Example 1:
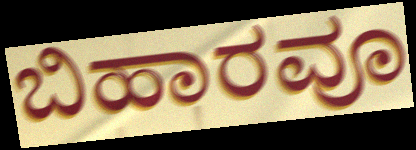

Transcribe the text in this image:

ಬಿಹಾರವೂ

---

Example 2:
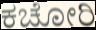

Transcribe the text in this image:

ಕಚೋರಿ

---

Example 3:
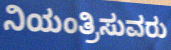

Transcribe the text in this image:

ನಿಯಂತ್ರಿಸುವರು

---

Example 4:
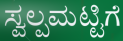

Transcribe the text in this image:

ಸ್ವಲ್ಪಮಟ್ಟಿಗೆ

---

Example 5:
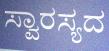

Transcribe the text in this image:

ಸ್ವಾರಸ್ಯದ